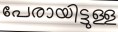
പേരായിട്ടുള്ള